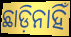
ଛାଡ଼ିନାହିଁ